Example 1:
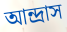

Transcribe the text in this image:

আন্দ্রাস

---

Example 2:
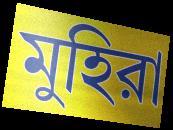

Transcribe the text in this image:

মুহিরা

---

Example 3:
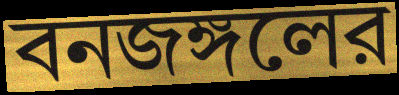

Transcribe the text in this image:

বনজঙ্গলের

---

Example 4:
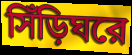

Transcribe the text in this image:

সিঁড়িঘরে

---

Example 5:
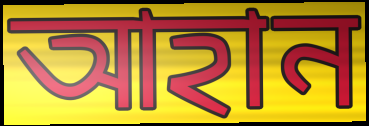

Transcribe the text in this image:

আহান